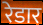
रेडार